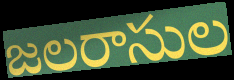
జలరాసుల